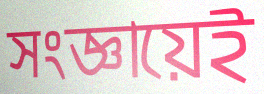
সংজ্ঞায়েই